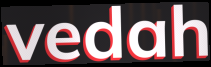
vedah